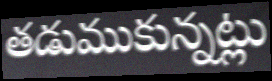
తడుముకున్నట్లు